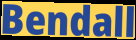
Bendall